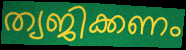
ത്യജിക്കണം